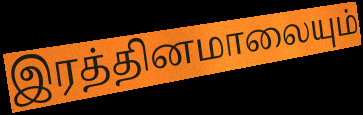
இரத்தினமாலையும்